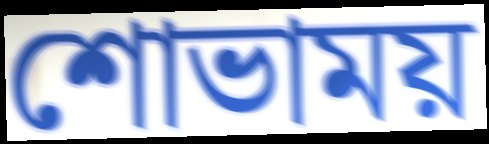
শোভাময়